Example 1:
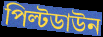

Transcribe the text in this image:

পিল্টডাউন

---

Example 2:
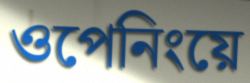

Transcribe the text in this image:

ওপেনিংয়ে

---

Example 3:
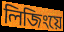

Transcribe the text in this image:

লিজিংয়ে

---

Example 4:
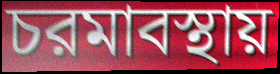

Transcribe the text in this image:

চরমাবস্থায়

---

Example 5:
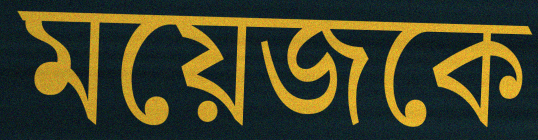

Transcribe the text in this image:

ময়েজকে